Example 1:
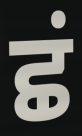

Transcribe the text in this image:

ਛਂ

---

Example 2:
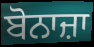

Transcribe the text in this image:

ਬੋਨਾਜ਼ਾ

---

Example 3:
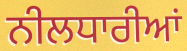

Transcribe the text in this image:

ਨੀਲਧਾਰੀਆਂ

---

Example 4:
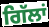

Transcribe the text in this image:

ਗਿੱਲਾਂ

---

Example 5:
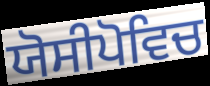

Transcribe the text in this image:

ਯੋਸੀਪੋਵਿਚ